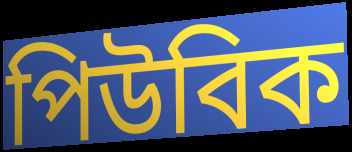
পিউবিক